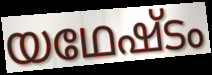
യഥേഷ്ടം